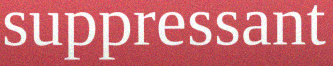
suppressant